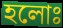
হলোঃ